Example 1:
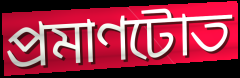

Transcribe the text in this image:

প্ৰমাণটোত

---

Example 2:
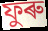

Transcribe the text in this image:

ফুৰু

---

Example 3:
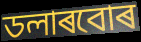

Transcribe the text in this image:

ডলাৰবোৰ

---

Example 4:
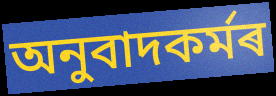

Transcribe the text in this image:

অনুবাদকৰ্মৰ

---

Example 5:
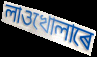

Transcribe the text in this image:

লাওখোলাৰে